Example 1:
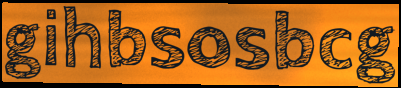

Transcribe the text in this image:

gihbsosbcg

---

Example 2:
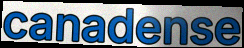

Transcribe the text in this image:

canadense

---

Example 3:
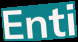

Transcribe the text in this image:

Enti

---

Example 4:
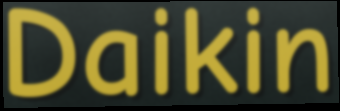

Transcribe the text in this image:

Daikin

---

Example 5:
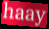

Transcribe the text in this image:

haay